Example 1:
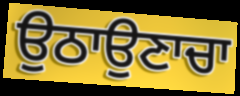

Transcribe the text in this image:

ਉਠਾਉਣਾਚਾ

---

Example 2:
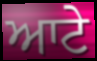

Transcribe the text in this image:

ਆਟੇ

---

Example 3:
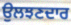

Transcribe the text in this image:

ਉਲਝਣਦਾਰ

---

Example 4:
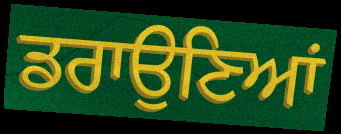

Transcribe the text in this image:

ਡਰਾਉਣਿਆਂ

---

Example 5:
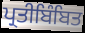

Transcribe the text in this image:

ਪ੍ਰਤੀਬਿੰਬਿਤ